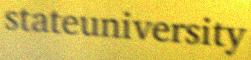
stateuniversity